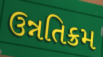
ઉન્નતિક્રમ